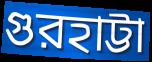
গুরহাট্টা